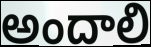
అందాలి